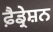
ਫ਼ੈਡ੍ਰੇਸ਼ਨ